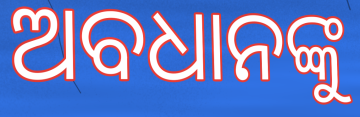
ଅବଧାନଙ୍କୁ